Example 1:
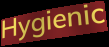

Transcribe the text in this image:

Hygienic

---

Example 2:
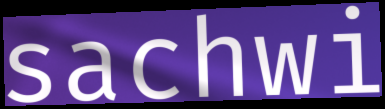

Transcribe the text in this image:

sachwi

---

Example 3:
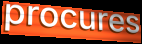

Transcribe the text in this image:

procures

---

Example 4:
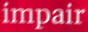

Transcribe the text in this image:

impair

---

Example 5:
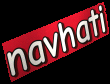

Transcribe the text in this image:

navhati